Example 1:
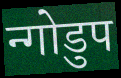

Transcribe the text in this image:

न्गोडुप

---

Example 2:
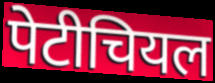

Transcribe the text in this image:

पेटीचियल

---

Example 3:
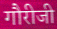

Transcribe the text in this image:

गौरीजी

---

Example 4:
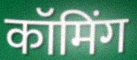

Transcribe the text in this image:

कॉमिंग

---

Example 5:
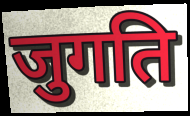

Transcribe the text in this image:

जुगति